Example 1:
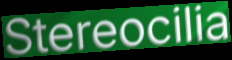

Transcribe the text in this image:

Stereocilia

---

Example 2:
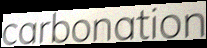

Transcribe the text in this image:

carbonation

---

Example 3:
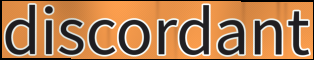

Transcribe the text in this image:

discordant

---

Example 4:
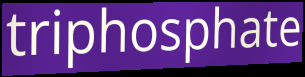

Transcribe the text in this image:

triphosphate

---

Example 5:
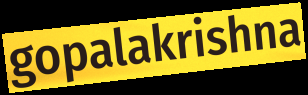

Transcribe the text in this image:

gopalakrishna